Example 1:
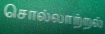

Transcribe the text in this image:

சொல்லாற்றல்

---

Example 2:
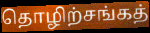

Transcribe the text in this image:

தொழிற்சங்கத்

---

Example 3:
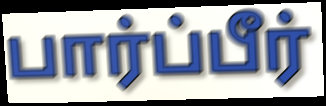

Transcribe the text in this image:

பார்ப்பீர்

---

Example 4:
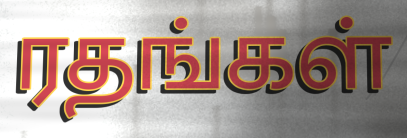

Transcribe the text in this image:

ரதங்கள்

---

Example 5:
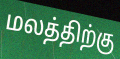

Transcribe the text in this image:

மலத்திற்கு